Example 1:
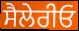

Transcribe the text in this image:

ਸੈਲੇਰੀਓ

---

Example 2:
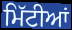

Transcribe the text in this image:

ਮਿੱਟੀਆਂ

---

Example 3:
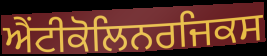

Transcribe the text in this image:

ਐਂਟੀਕੋਲਿਨਰਜਿਕਸ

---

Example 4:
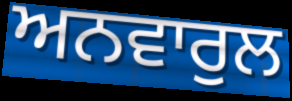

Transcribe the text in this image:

ਅਨਵਾਰੁਲ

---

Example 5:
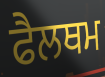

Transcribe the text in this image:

ਫੈਲਥਮ